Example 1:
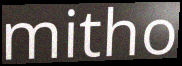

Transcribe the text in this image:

mitho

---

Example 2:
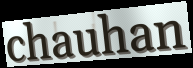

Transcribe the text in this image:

chauhan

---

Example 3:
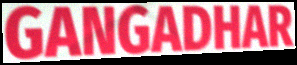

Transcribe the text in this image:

GANGADHAR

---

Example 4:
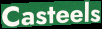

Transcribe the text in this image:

Casteels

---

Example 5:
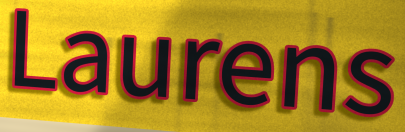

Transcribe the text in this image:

Laurens